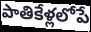
పాతికేళ్లలోపే